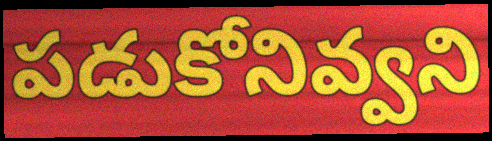
పడుకోనివ్వని